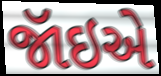
જૉઇએ